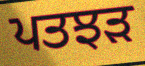
ਪਤਝੜ